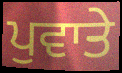
ਪੁਵਾਤੇ